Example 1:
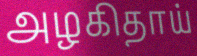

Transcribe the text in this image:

அழகிதாய்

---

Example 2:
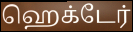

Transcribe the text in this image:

ஹெக்டேர்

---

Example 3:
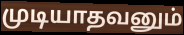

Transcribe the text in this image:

முடியாதவனும்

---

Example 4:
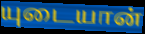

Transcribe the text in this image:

யுடையான்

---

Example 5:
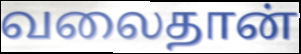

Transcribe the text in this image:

வலைதான்